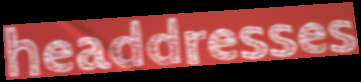
headdresses